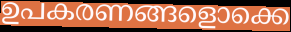
ഉപകരണങ്ങളൊക്കെ